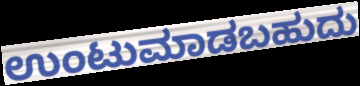
ಉಂಟುಮಾಡಬಹುದು